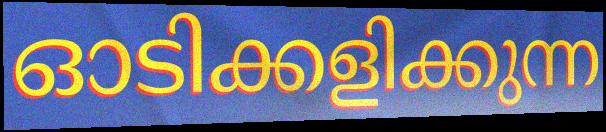
ഓടിക്കളിക്കുന്ന